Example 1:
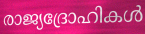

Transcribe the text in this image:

രാജ്യദ്രോഹികൾ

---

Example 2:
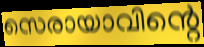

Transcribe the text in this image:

സെരായാവിന്റെ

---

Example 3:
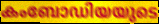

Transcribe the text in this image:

കംബോഡിയയുടെ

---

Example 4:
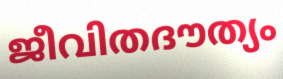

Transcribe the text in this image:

ജീവിതദൗത്യം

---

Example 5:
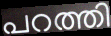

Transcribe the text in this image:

പറത്തി